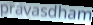
pravasdham